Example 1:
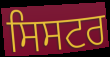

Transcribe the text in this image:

ਸਿਸਟਰ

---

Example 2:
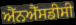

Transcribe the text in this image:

ਐੱਨਐੱਸਡੀਸੀ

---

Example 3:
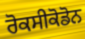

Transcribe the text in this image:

ਰੋਕਸੀਕੋਡੋਨ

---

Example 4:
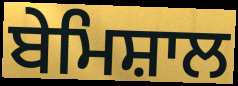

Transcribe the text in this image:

ਬੇਮਿਸ਼ਾਲ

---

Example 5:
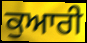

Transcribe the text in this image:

ਕੁਆਰੀ